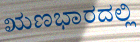
ಋಣಭಾರದಲ್ಲಿ